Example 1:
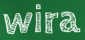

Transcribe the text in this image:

wira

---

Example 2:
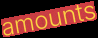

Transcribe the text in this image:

amounts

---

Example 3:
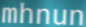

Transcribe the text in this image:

mhnun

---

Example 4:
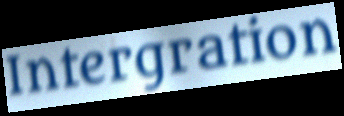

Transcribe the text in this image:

Intergration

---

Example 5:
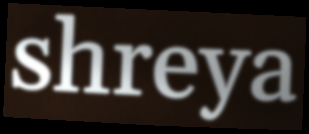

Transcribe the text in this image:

shreya